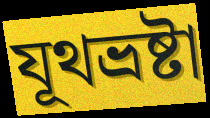
যূথভ্রষ্টা